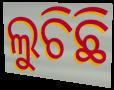
ଲୁଚିଛି